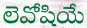
లెవోషియే